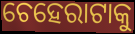
ଚେହେରାଟାକୁ